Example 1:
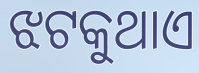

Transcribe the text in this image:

ଝଟକୁଥାଏ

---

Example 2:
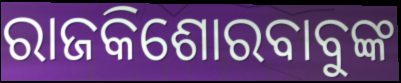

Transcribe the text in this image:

ରାଜକିଶୋରବାବୁଙ୍କ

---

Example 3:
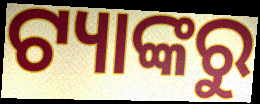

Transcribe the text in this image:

ଟ୍ୟାଙ୍କରୁ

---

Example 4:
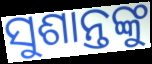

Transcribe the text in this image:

ସୁଶାନ୍ତଙ୍କୁ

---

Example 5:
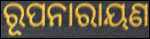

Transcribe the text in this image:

ରୂପନାରାୟଣ